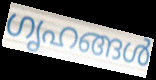
ഗൃഹങ്ങൾ